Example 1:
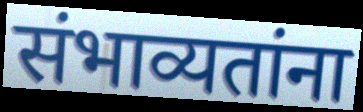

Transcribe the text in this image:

संभाव्यतांना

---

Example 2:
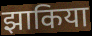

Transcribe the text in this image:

झाकिया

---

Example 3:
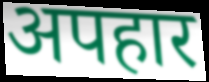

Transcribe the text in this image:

अपहार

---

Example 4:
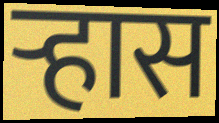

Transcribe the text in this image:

ऱ्हास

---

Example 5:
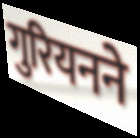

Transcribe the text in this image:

गुरियनने